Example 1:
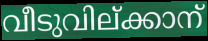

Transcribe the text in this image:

വീടുവില്ക്കാന്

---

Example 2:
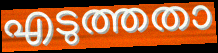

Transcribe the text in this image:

എടുത്തതാ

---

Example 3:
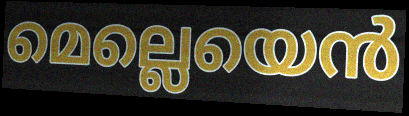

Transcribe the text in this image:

മെല്ലെയെൻ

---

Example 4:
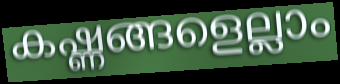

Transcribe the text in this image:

കഷ്ണങ്ങളെല്ലാം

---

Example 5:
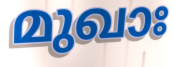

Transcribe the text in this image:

മുഖാഃ